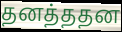
தனத்ததன